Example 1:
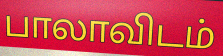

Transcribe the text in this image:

பாலாவிடம்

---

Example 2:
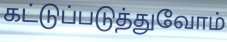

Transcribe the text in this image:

கட்டுப்படுத்துவோம்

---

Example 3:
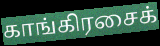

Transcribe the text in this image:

காங்கிரசைக்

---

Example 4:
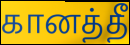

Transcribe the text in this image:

கானத்தீ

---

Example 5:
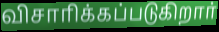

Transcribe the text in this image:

விசாரிக்கப்படுகிறார்